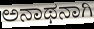
ಅನಾಥನಾಗಿ